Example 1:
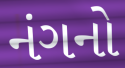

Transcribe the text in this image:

નંગનો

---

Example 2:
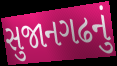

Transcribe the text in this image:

સુજાનગઢનું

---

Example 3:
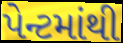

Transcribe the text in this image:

પેન્ટમાંથી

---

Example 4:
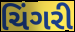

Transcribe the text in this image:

ચિંગરી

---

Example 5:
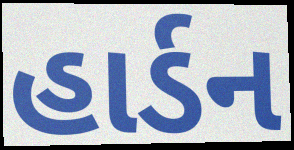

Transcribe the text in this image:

હાર્ડન